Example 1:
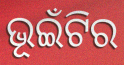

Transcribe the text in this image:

ଭୂଇଁଟିର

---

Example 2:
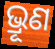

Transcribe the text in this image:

ଭ୍ରୂଣ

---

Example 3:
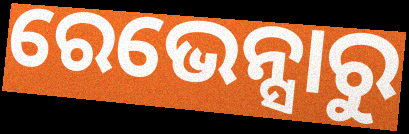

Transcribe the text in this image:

ରେଭେନ୍ସାରୁ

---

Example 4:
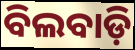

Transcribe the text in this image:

ବିଲବାଡ଼ି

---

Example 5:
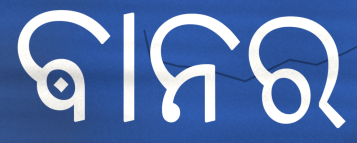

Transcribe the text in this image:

ଵାନର